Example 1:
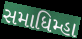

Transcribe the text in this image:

સમાધિમ્હા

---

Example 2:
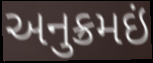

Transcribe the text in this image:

અનુક્રમઇં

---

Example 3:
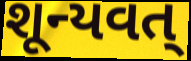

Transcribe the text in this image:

શૂન્યવત્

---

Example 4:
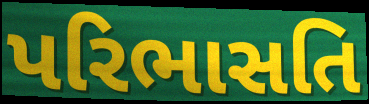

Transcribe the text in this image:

પરિભાસતિ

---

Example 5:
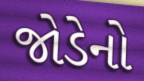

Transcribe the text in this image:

જોડેનો